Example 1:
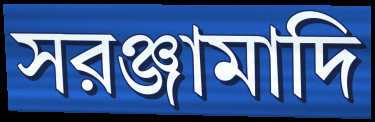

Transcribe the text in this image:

সরঞ্জামাদি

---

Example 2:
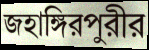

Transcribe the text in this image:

জহাঙ্গিরপুরীর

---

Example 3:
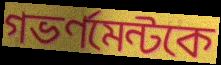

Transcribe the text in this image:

গভর্ণমেন্টকে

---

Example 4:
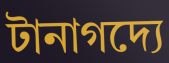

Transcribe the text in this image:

টানাগদ্যে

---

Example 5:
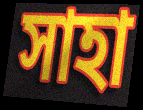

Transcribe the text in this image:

সাহা